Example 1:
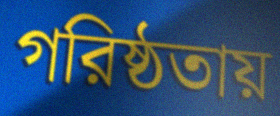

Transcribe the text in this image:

গরিষ্ঠতায়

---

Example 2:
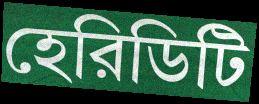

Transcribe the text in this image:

হেরিডিটি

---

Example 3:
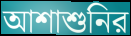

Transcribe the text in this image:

আশাশুনির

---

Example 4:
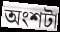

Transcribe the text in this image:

অংশটা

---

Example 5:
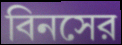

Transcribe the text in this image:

বিনসের